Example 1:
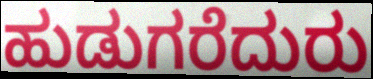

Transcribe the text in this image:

ಹುಡುಗರೆದುರು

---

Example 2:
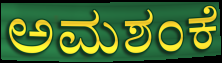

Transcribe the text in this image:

ಅಮಶಂಕೆ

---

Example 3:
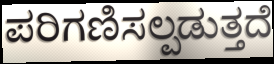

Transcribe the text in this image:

ಪರಿಗಣಿಸಲ್ಪಡುತ್ತದೆ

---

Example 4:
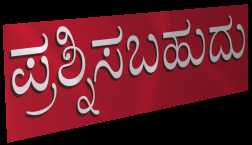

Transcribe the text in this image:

ಪ್ರಶ್ನಿಸಬಹುದು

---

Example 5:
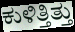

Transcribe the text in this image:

ಕುಳಿತ್ತಿತ್ತು